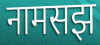
नामसझ